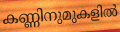
കണ്ണിനുമുകളിൽ